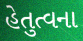
હેતુત્વના